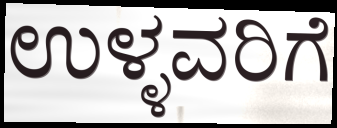
ಉಳ್ಳವರಿಗೆ